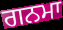
ਗਨਮਾ